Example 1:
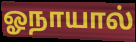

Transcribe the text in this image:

ஓநாயால்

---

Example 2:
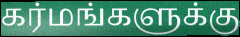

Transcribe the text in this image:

கர்மங்களுக்கு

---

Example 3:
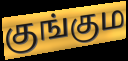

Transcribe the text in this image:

குங்கும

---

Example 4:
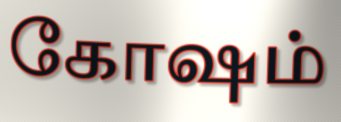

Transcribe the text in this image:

கோஷம்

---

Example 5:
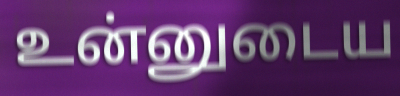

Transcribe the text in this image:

உன்னுடைய